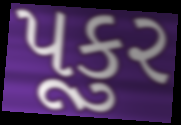
પૂકુર